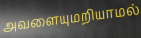
அவளையுமறியாமல்